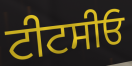
ਟੀਟਸੀਓ